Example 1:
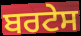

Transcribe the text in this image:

ਬਰਟੇਸ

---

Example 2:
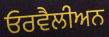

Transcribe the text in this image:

ਓਰਵੈਲੀਅਨ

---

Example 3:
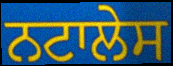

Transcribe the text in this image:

ਨਟਾਲੇਸ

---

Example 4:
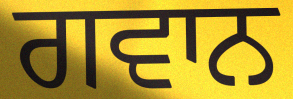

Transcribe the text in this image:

ਗਵਾਨ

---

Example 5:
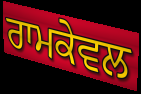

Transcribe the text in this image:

ਰਾਮਕੇਵਲ